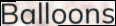
Balloons